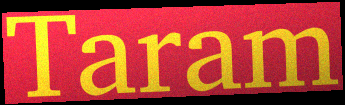
Taram